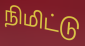
நிமிட்டு